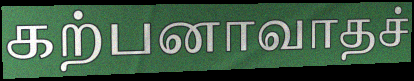
கற்பனாவாதச்